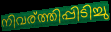
നിവര്ത്തിപ്പിടിച്ചു